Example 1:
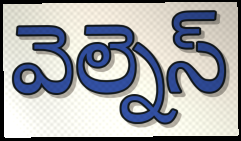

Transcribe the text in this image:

వెల్నెస్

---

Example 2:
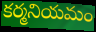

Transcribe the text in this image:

కర్మనియమం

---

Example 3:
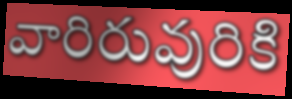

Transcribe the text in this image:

వారిరువురికి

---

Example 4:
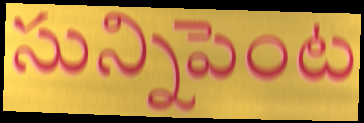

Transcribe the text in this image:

సున్నిపెంట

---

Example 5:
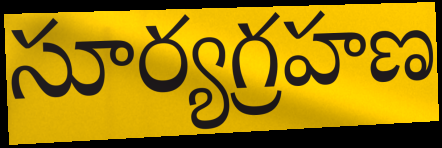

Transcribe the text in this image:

సూర్యగ్రహణ